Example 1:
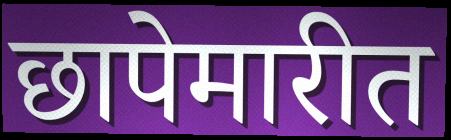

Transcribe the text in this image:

छापेमारीत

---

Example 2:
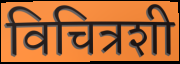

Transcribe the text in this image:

विचित्रशी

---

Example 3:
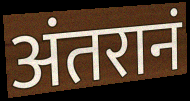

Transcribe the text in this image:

अंतरानं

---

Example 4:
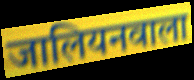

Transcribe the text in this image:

जालियनवाला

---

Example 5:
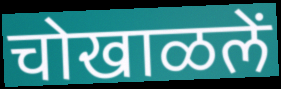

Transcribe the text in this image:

चोखाळलें